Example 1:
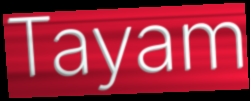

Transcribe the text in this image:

Tayam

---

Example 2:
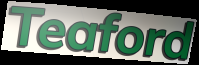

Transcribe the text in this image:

Teaford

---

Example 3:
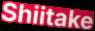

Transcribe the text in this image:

Shiitake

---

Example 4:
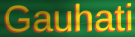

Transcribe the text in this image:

Gauhati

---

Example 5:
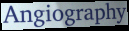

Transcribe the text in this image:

Angiography